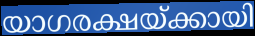
യാഗരക്ഷയ്ക്കായി